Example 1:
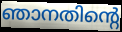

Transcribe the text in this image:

ഞാനതിന്റെ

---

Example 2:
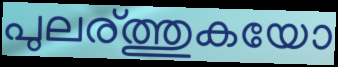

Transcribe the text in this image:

പുലര്ത്തുകയോ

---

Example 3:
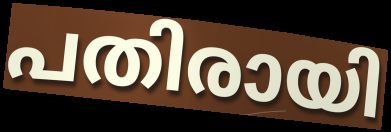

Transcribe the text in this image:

പതിരായി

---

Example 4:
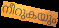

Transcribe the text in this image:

നീറുകയും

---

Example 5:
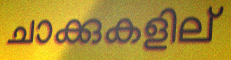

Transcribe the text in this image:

ചാക്കുകളില്